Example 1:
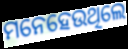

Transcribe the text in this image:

ମନେହେଉଥିଲେ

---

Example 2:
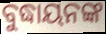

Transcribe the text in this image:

ବୁଦ୍ଧାୟନଙ୍କ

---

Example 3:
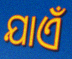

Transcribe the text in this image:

ଯାଏଁ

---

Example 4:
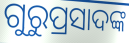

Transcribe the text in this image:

ଗୁରୁପ୍ରସାଦଙ୍କ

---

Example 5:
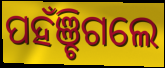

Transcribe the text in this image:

ପହଁଞ୍ଚିଗଲେ